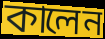
কালেন